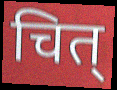
चित्